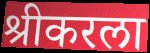
श्रीकरला